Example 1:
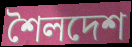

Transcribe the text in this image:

শৈলদেশ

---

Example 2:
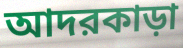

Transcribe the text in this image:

আদরকাড়া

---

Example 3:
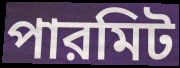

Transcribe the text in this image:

পারমিট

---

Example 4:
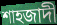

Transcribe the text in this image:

শাহজাদী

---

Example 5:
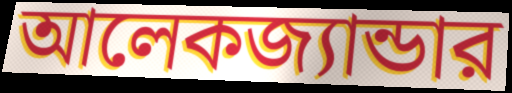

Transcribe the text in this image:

আলেকজ্যান্ডার